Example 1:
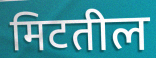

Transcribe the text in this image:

मिटतील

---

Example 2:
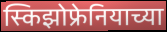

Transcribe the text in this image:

स्किझोफ्रेनियाच्या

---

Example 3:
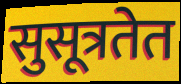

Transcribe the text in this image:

सुसूत्रतेत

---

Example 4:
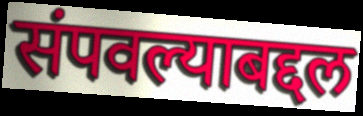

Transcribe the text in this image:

संपवल्याबद्दल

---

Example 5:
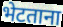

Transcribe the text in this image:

भेटताना